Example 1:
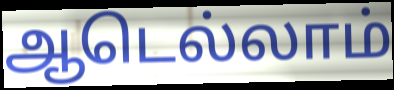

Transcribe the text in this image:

ஆடெல்லாம்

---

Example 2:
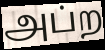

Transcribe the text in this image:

அப்ற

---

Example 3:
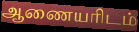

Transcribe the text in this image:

ஆணையரிடம்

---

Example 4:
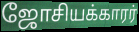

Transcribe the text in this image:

ஜோசியக்காரர்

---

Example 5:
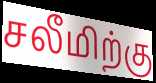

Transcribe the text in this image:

சலீமிற்கு